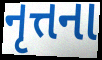
નૃત્તના